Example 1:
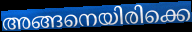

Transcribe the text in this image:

അങ്ങനെയിരിക്കെ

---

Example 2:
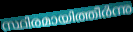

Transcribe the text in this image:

സ്ഥിരമായിത്തീർന്നു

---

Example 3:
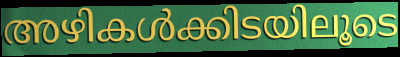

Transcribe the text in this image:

അഴികൾക്കിടയിലൂടെ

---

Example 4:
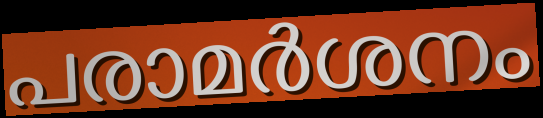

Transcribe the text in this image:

പരാമർശനം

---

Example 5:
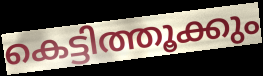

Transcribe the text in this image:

കെട്ടിത്തൂക്കും